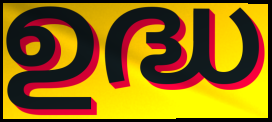
ഉദ്ധ